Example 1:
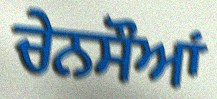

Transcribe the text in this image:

ਚੇਨਸੌਆਂ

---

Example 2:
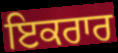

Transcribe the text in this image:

ਇਕਰਾਰ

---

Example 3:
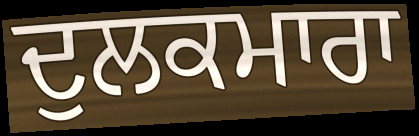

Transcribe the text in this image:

ਦੁਲਕਮਾਰਾ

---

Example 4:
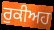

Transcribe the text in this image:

ਰੁਕੀਅਹ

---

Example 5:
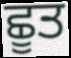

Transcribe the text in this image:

ਛੂਤ